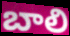
బాలి